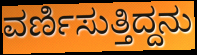
ವರ್ಣಿಸುತ್ತಿದ್ದನು